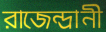
রাজেন্দ্রানী